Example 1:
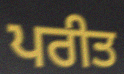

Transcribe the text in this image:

ਪਰੀਤ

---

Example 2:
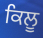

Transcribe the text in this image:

ਕਿਲੂ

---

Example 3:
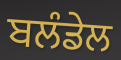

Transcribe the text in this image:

ਬਲੰਡੇਲ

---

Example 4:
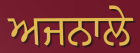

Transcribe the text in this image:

ਅਜਨਾਲੇ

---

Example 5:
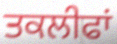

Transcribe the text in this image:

ਤਕਲੀਫਾਂ